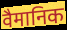
वैमानिक